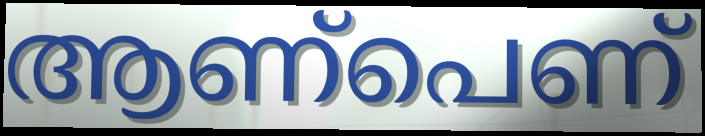
ആണ്പെണ്